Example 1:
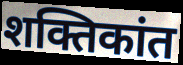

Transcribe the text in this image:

शक्तिकांत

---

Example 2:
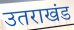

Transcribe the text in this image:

उतराखंड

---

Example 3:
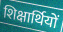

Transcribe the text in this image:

शिक्षार्थियों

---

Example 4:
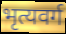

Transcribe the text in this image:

भृत्यवर्ग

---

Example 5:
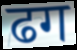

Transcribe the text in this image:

ढग